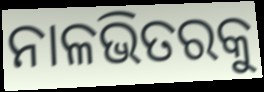
ନାଳଭିତରକୁ